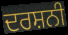
ਦਰਸ਼ਨੀ